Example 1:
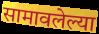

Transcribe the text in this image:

सामावलेल्या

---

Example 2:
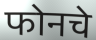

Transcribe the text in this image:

फोनचे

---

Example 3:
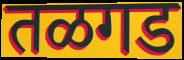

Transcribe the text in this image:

तळगड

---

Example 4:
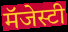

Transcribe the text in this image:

मॅजेस्टी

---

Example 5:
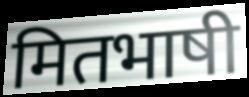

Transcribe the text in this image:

मितभाषी